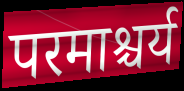
परमाश्चर्य